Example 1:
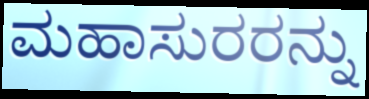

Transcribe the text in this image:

ಮಹಾಸುರರನ್ನು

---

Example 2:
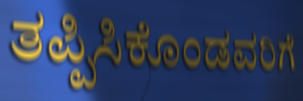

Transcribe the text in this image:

ತಪ್ಪಿಸಿಕೊಂಡವರಿಗೆ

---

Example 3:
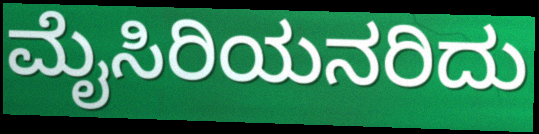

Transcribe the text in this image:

ಮೈಸಿರಿಯನರಿದು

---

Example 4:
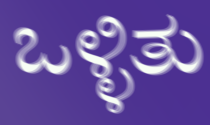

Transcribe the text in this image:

ಒಳ್ಳಿತು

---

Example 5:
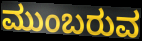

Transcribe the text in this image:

ಮುಂಬರುವ